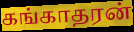
கங்காதரன்